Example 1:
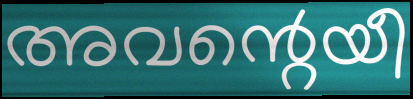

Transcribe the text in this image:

അവന്റെയീ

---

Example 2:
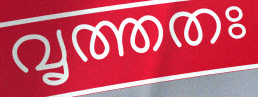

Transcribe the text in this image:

വൃത്തതഃ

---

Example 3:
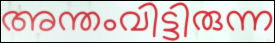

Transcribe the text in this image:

അന്തംവിട്ടിരുന്ന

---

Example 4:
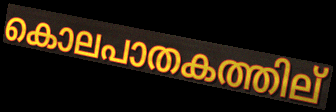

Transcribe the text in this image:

കൊലപാതകത്തില്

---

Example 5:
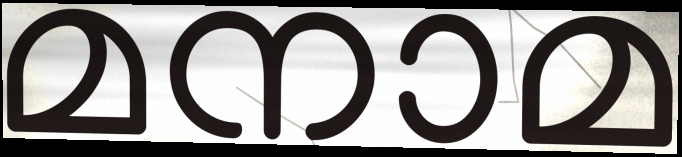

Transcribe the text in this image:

മനാമ